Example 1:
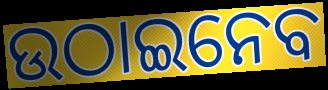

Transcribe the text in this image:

ଉଠାଇନେବ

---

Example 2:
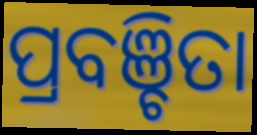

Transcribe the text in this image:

ପ୍ରବଞ୍ଚିତା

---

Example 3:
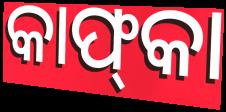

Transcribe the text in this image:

କାଫ୍‌କା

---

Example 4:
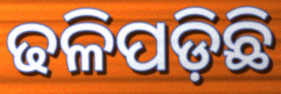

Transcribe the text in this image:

ଢଳିପଡ଼ିଛି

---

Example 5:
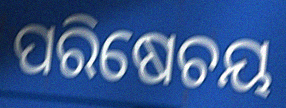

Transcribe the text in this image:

ପରିଷେଚୟ